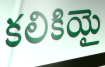
కలికియై